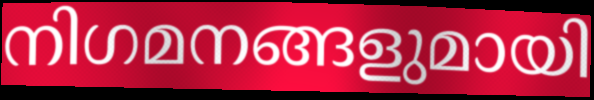
നിഗമനങ്ങളുമായി